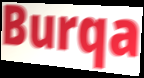
Burqa